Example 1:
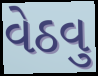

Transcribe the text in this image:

વેઠવુ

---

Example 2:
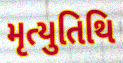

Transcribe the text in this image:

મૃત્યુતિથિ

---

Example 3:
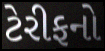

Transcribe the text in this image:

ટેરીફનો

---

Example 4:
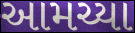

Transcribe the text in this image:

આમચ્યા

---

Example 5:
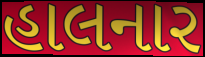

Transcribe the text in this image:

હાલનાર